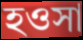
হওসা